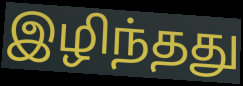
இழிந்தது